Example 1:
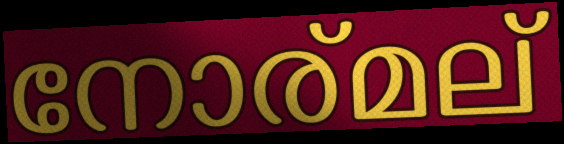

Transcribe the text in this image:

നോര്മല്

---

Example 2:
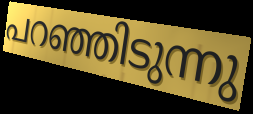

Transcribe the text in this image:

പറഞ്ഞിടുന്നു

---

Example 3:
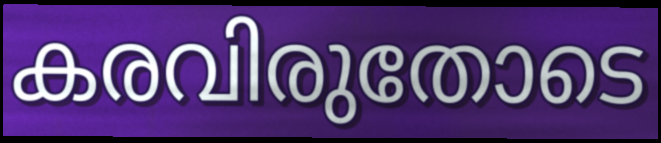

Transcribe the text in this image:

കരവിരുതോടെ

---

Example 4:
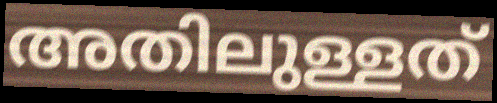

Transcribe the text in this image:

അതിലുള്ളത്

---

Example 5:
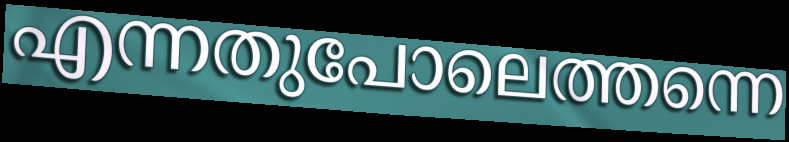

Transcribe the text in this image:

എന്നതുപോലെത്തന്നെ